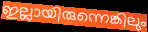
ഇല്ലായിരുന്നെങ്കിലും